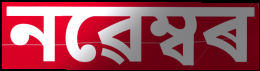
নৱেম্বৰ